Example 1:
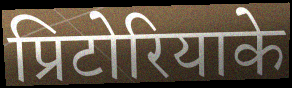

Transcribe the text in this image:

प्रिटोरियाके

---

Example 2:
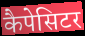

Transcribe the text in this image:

कैपेसिटर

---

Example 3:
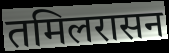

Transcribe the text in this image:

तमिलरासन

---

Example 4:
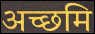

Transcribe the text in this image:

अच्छमि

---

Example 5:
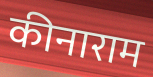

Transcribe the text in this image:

कीनाराम